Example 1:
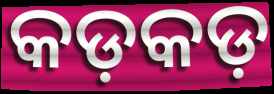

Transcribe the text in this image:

କଡ଼କଡ଼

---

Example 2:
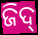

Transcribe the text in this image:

ଜିଦ୍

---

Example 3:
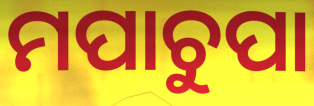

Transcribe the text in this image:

ମପାଚୁପା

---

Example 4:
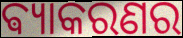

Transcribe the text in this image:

ଵ୍ୟାକରଣର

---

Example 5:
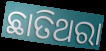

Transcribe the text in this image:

ଛାତିଥରା